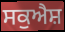
ਸਕੁਐਸ਼